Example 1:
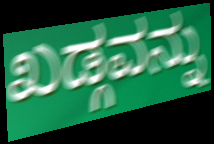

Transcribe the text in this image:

ಖಡ್ಗವನ್ನು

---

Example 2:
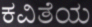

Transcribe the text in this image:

ಕವಿತೆಯ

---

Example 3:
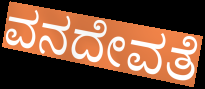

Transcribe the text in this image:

ವನದೇವತೆ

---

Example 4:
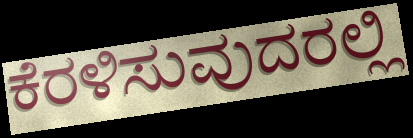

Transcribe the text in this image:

ಕೆರಳಿಸುವುದರಲ್ಲಿ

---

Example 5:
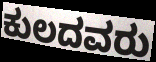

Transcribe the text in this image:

ಕುಲದವರು